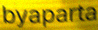
byaparta